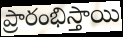
ప్రారంభిస్తాయి